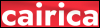
cairica